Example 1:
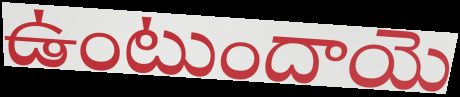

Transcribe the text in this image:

ఉంటుందాయె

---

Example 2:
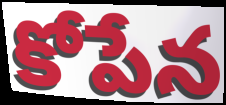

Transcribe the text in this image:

కోపేన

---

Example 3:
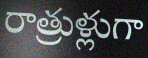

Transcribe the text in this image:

రాత్రుళ్లుగా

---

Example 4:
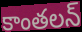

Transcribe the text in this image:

కాంతలన్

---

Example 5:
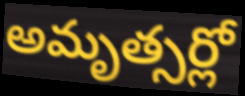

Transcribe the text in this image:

అమృత్సర్లో